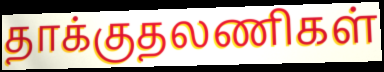
தாக்குதலணிகள்